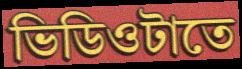
ভিডিওটাতে